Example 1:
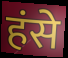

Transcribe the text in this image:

हंसे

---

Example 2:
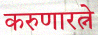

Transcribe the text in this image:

करुणारत्ने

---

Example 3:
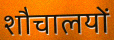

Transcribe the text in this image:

शौचालयों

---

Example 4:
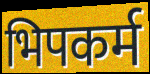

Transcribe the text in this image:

भिपकर्म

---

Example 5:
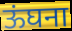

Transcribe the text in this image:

ऊंघना